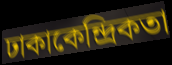
ঢাকাকেন্দ্রিকতা